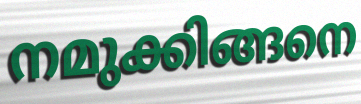
നമുക്കിങ്ങനെ